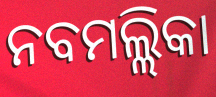
ନବମଲ୍ଲିକା